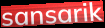
sansarik